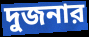
দুজনার